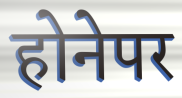
होनेपर